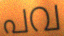
പവ